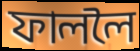
ফাললৈ